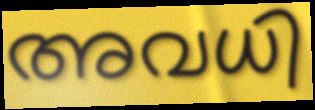
അവധി